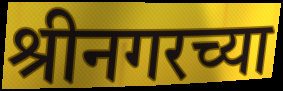
श्रीनगरच्या